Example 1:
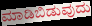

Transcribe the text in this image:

ಮಾಡಿಬಿಡುವುದು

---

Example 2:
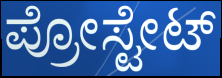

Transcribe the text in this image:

ಪ್ರೋಸ್ಟೇಟ್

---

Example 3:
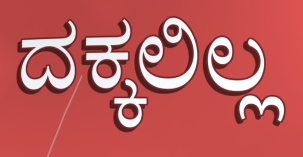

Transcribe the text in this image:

ದಕ್ಕಲಿಲ್ಲ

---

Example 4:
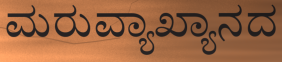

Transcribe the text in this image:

ಮರುವ್ಯಾಖ್ಯಾನದ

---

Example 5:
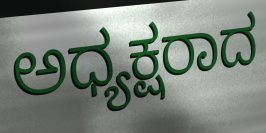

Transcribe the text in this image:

ಅಧ್ಯಕ್ಷರಾದ